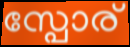
സ്പോര്